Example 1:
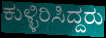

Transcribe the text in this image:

ಕುಳ್ಳಿರಿಸಿದ್ದರು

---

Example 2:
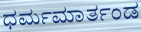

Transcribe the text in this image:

ಧರ್ಮಮಾರ್ತಂಡ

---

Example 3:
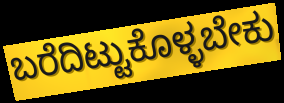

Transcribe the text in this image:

ಬರೆದಿಟ್ಟುಕೊಳ್ಳಬೇಕು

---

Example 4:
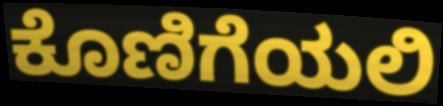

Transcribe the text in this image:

ಕೊಣಿಗೆಯಲಿ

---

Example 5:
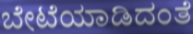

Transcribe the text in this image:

ಬೇಟೆಯಾಡಿದಂತೆ